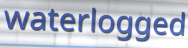
waterlogged